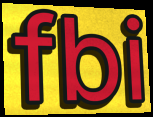
fbi